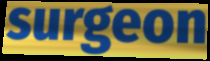
surgeon